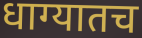
धाग्यातच